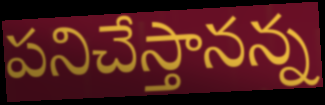
పనిచేస్తానన్న